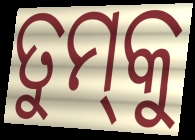
ତୁମ୍‌କୁ